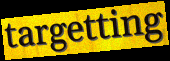
targetting